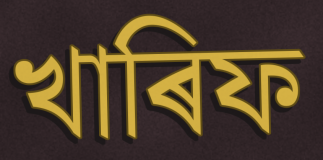
খাৰিফ